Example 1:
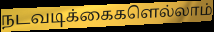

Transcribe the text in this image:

நடவடிக்கைகளெல்லாம்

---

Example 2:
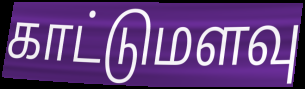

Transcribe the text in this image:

காட்டுமளவு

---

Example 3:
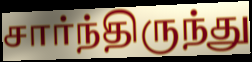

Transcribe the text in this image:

சார்ந்திருந்து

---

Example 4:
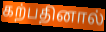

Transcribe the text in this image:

கற்பதினால்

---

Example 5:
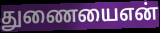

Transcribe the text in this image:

துணையைஎன்